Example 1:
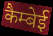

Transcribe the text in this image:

कैम्बेई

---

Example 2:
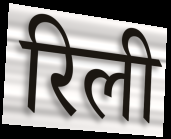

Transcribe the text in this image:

रिली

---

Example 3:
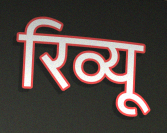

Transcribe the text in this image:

रिव्यू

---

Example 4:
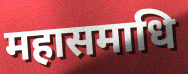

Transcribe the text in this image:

महासमाधि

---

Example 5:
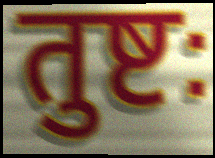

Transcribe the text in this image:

तुष्टः